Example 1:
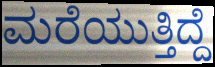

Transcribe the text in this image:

ಮರೆಯುತ್ತಿದ್ದೆ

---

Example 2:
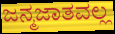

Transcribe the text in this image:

ಜನ್ಮಜಾತವಲ್ಲ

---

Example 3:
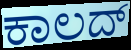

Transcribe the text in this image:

ಕಾಲದ್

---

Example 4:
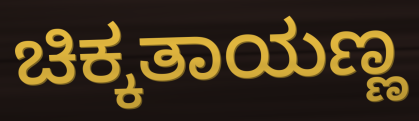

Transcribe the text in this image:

ಚಿಕ್ಕತಾಯಣ್ಣ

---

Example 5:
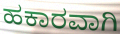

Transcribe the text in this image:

ಹಕಾರವಾಗಿ